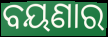
ବୟଣାର